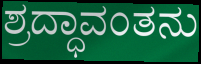
ಶ್ರದ್ಧಾವಂತನು